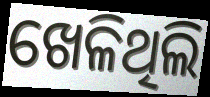
ଖେଳିଥିଲି